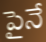
పైనే